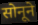
सोनूने